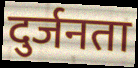
दुर्जनता